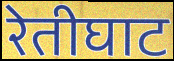
रेतीघाट